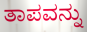
ತಾಪವನ್ನು